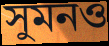
সুমনও